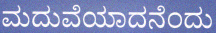
ಮದುವೆಯಾದನೆಂದು